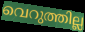
വെറുത്തില്ല